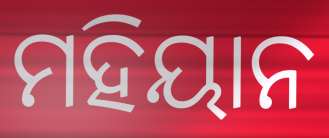
ମହିୟାନ